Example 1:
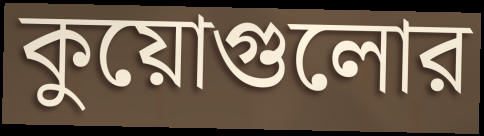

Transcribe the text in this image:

কুয়োগুলোর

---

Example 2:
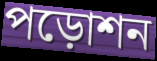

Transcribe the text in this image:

পড়োশন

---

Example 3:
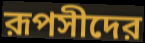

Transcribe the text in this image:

রূপসীদের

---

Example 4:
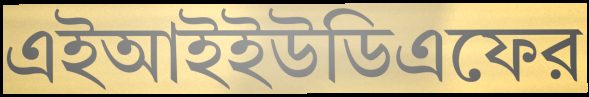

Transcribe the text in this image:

এইআইইউডিএফের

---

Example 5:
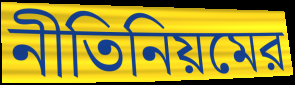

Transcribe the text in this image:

নীতিনিয়মের